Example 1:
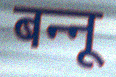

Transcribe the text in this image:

बन्नू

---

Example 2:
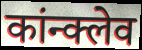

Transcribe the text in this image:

कांन्क्लेव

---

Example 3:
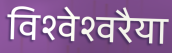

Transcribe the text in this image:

विश्वेश्वरैया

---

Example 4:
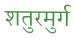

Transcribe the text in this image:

शतुरमुर्ग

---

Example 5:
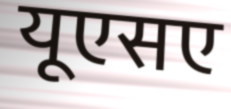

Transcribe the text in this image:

यूएसए